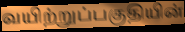
வயிற்றுப்பகுதியின்